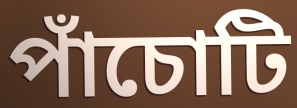
পাঁচোটি